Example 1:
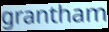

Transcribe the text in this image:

grantham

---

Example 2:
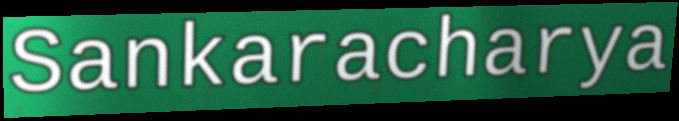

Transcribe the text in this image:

Sankaracharya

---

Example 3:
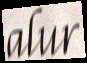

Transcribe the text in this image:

alur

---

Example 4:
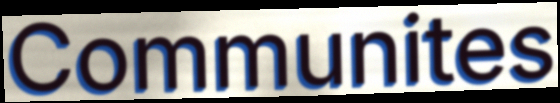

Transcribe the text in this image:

Communites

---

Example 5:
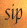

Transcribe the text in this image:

sip